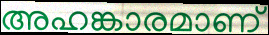
അഹങ്കാരമാണ്